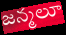
జన్మలూ